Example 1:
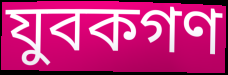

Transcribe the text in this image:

যুবকগণ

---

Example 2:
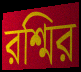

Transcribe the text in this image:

রশ্মির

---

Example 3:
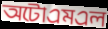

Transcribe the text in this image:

অটোএমএল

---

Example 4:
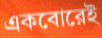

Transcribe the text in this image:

একবোরেই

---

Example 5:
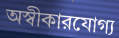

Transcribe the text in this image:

অস্বীকারযোগ্য